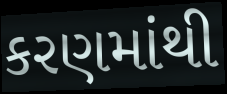
કરણમાંથી